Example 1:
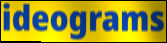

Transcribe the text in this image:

ideograms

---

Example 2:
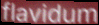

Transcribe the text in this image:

flavidum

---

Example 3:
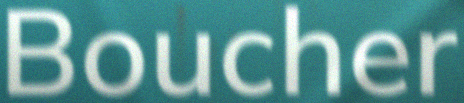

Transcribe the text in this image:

Boucher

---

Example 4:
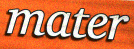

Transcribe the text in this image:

mater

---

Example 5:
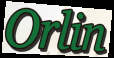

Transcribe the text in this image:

Orlin